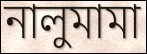
নালুমামা